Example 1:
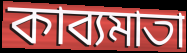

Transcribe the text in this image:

কাব্যমাতা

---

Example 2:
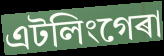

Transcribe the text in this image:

এটলিংগেৰা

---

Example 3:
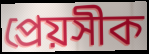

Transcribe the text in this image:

প্ৰেয়সীক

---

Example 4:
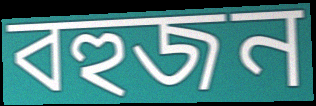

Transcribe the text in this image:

বহুজন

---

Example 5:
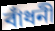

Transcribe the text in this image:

বাঁধনী